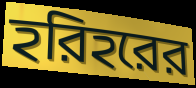
হরিহরের